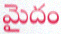
మైదం